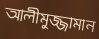
আলীমুজ্জামান